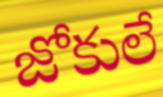
జోకులే